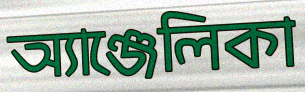
অ্যাঞ্জেলিকা